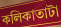
কলিকাতাটা